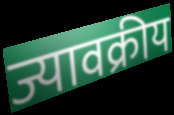
ज्यावक्रीय